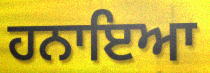
ਹਨਾਇਆ